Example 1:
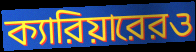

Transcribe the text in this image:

ক্যারিয়ারেরও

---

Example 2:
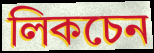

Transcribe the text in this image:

লিকচেন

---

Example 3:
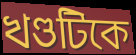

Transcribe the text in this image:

খণ্ডটিকে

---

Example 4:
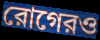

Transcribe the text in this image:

রোগেরও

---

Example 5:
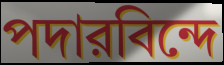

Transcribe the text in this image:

পদারবিন্দে